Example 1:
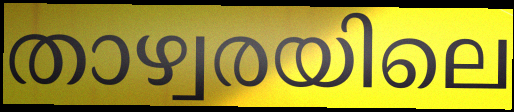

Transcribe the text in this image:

താഴ്വരയിലെ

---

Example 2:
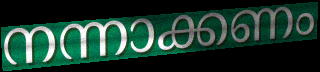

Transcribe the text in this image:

നന്നാക്കണം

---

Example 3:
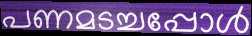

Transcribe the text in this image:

പണമടച്ചപ്പോൾ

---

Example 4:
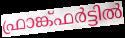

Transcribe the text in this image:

ഫ്രാങ്ക്ഫർട്ടിൽ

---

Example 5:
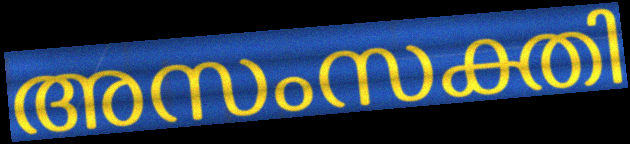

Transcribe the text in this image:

അസംസക്തി